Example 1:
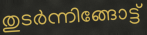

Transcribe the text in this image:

തുടർന്നിങ്ങോട്ട്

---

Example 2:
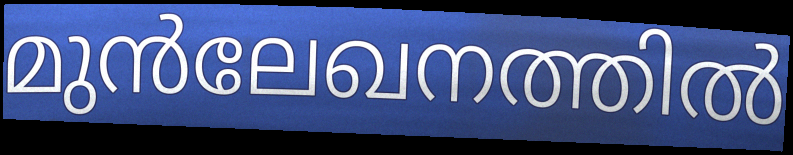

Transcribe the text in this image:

മുൻലേഖനത്തിൽ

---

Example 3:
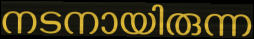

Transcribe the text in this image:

നടനായിരുന്ന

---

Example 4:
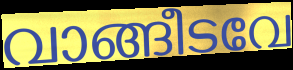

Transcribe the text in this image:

വാങ്ങീടവേ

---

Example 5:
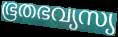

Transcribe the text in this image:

ഭൂതഭവ്യസ്യ